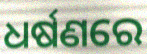
ଧର୍ଷଣରେ